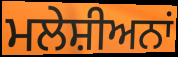
ਮਲੇਸ਼ੀਅਨਾਂ